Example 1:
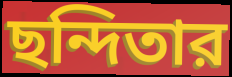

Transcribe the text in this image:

ছন্দিতার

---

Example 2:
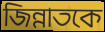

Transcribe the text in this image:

জিন্নাতকে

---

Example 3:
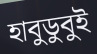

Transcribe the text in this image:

হাবুডুবুই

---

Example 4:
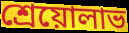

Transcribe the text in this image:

শ্রেয়োলাভ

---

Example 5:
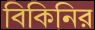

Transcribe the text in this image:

বিকিনির